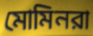
মোমিনরা